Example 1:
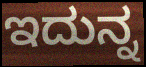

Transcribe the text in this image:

ಇದುನ್ನ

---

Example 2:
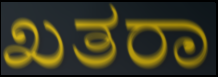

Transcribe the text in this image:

ಖತರಾ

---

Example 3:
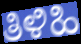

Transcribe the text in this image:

ತಿಳಿಹಿ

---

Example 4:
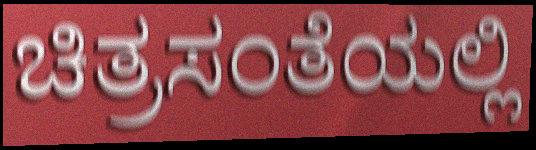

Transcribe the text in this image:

ಚಿತ್ರಸಂತೆಯಲ್ಲಿ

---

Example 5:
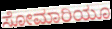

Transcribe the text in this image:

ಸೋಮಾರಿಯೂ